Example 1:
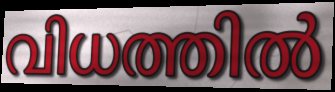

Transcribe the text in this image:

വിധത്തിൽ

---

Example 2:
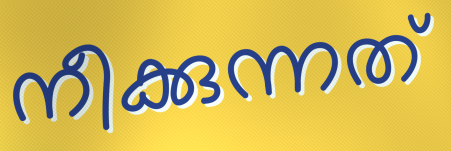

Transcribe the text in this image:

നീക്കുന്നത്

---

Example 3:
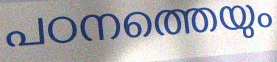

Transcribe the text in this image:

പഠനത്തെയും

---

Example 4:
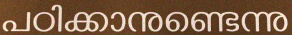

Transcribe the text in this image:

പഠിക്കാനുണ്ടെന്നു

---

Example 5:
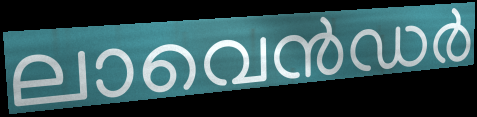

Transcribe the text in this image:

ലാവെൻഡർ